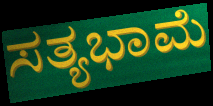
ಸತ್ಯಭಾಮೆ